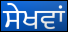
ਸੇਖਵਾਂ